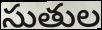
సుతుల